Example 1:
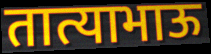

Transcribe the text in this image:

तात्याभाऊ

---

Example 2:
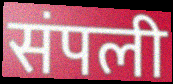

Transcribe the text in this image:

संपली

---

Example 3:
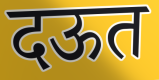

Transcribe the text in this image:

दऊत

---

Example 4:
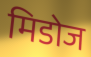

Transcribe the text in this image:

मिडोज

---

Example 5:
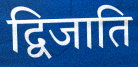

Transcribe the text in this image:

द्विजाति